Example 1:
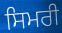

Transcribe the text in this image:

ਸਿਮਰੀ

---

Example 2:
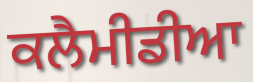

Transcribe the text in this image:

ਕਲੈਮੀਡੀਆ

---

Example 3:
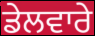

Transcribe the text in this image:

ਡੇਲਵਾਰੇ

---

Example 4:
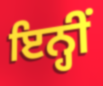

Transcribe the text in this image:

ਇਨ੍ਹੀਂ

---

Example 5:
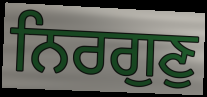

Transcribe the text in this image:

ਨਿਰਗੁਣੁ